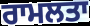
ਰਾਮਲਤਾ